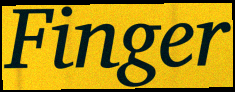
Finger